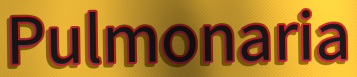
Pulmonaria